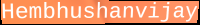
Hembhushanvijay